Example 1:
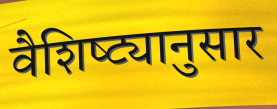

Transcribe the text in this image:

वैशिष्ट्यानुसार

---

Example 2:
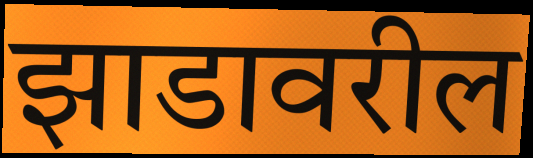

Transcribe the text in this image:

झाडावरील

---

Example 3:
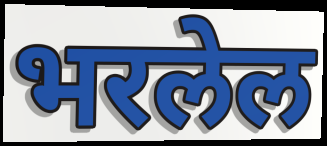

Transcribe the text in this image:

भरलेल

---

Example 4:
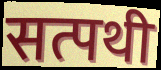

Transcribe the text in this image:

सत्पथी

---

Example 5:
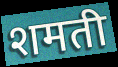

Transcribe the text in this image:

शमती